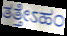
ತತ್ತೇಽಹಂ